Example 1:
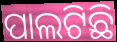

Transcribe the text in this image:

ପାଲଟିଛି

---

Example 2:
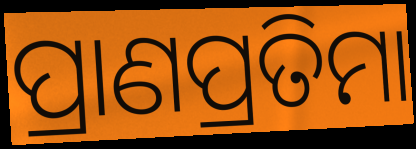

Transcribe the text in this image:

ପ୍ରାଣପ୍ରତିମା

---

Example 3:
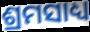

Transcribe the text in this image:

ଶ୍ରମସାଧ୍ୟ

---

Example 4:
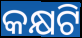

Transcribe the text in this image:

କକ୍ଷଟି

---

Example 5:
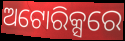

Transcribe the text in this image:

ଅଟୋରିକ୍ସରେ